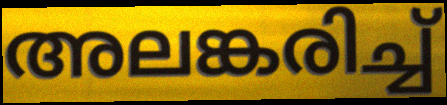
അലങ്കരിച്ച്